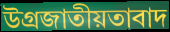
উগ্রজাতীয়তাবাদ